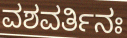
ವಶವರ್ತಿನಃ